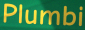
Plumbi